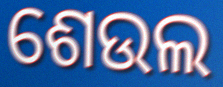
ଶେଉଲ